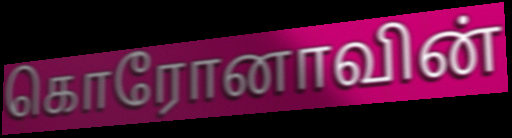
கொரோனாவின்